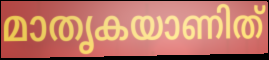
മാതൃകയാണിത്